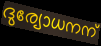
ദുര്യോധനന്